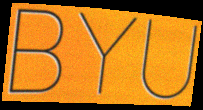
BYU